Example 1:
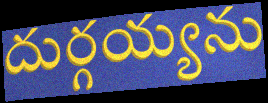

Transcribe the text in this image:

దుర్గయ్యను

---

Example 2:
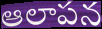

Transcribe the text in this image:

ఆలాపన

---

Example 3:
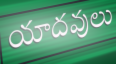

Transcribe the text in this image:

యాదవులు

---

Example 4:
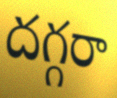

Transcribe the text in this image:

దగ్గరా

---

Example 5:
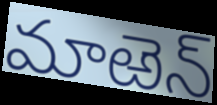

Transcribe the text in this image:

మాఱెన్